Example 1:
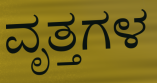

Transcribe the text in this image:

ವೃತ್ತಗಳ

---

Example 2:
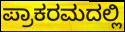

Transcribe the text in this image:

ಪ್ರಾಕರಮದಲ್ಲಿ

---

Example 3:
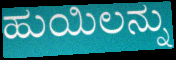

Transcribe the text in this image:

ಹುಯಿಲನ್ನು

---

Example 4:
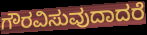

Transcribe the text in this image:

ಗೌರವಿಸುವುದಾದರೆ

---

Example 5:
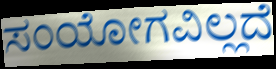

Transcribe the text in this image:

ಸಂಯೋಗವಿಲ್ಲದೆ